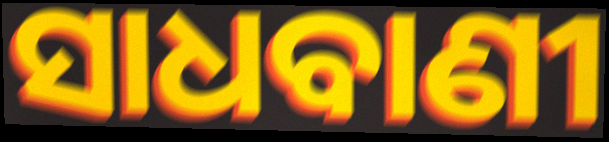
ସାଧବାଣୀ